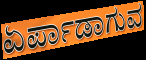
ಏರ್ಪಾಡಾಗುವ